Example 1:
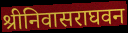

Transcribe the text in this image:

श्रीनिवासराघवन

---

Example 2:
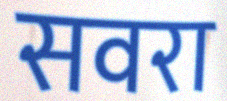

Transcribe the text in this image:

सवरा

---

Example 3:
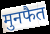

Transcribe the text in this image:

मुनफैत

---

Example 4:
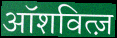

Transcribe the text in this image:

ऑशवित्ज़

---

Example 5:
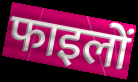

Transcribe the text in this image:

फाइलों